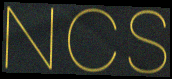
NCS